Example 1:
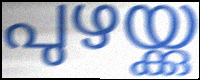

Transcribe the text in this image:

പുഴയ്ക്കു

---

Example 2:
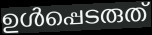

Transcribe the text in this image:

ഉൾപ്പെടരുത്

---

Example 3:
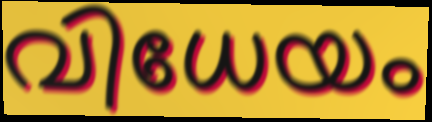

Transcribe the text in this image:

വിധേയം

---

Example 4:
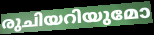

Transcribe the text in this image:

രുചിയറിയുമോ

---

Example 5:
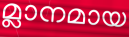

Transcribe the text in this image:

മ്ലാനമായ